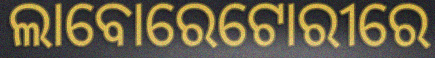
ଲାବୋରେଟୋରୀରେ